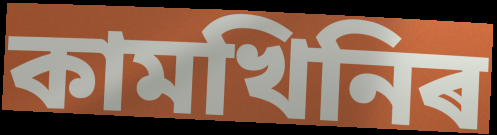
কামখিনিৰ